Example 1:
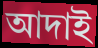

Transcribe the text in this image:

আদাই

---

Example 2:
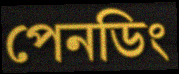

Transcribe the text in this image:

পেনডিং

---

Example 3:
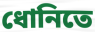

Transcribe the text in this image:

ধোনিতে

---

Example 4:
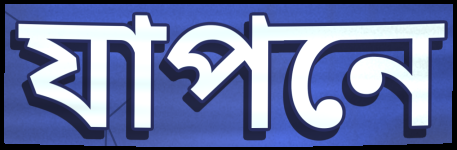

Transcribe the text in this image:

যাপনে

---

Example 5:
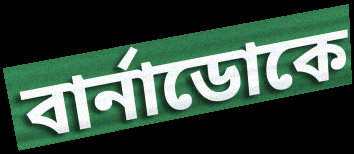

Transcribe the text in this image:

বার্নাডোকে